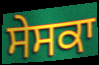
ਸੇਸਕਾ